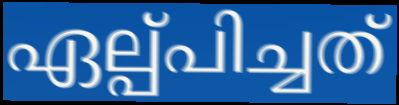
ഏല്പ്പിച്ചത്